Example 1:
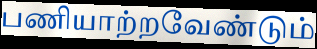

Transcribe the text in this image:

பணியாற்றவேண்டும்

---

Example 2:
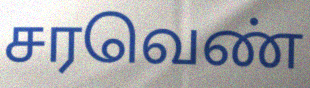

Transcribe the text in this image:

சரவெண்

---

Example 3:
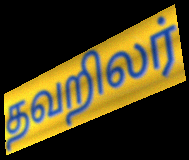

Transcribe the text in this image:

தவறிலர்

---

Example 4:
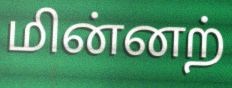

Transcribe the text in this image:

மின்னற்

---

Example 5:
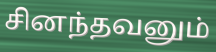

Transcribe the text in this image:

சினந்தவனும்